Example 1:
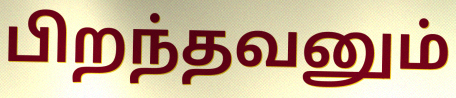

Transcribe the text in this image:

பிறந்தவனும்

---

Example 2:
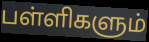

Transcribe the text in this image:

பள்ளிகளும்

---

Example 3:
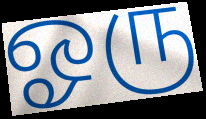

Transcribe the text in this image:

ஓரு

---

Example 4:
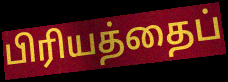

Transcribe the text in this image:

பிரியத்தைப்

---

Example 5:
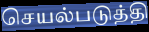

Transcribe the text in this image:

செயல்படுத்தி